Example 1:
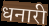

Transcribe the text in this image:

धनारी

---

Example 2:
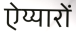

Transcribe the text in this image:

ऐय्यारों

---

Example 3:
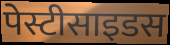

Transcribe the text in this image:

पेस्टीसाइडस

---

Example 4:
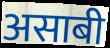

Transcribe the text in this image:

असाबी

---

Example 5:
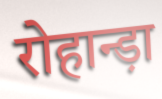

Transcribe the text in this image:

रोहान्ड़ा